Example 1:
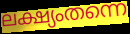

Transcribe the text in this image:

ലക്ഷ്യംതന്നെ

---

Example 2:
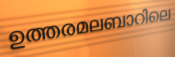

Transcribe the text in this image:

ഉത്തരമലബാറിലെ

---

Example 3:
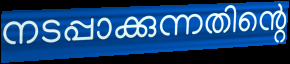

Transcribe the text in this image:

നടപ്പാക്കുന്നതിന്റെ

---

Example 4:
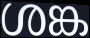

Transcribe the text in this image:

ശങ്ക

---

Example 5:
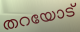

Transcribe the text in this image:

തറയോട്